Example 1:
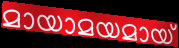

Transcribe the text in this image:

മായാമയമായ്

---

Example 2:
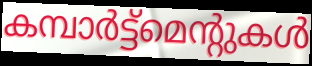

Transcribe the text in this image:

കമ്പാർട്ട്മെന്റുകൾ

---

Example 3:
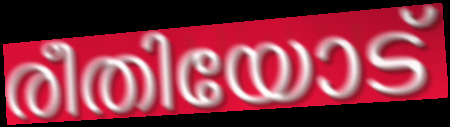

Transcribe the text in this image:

രീതിയോട്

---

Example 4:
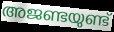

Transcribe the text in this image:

അജണ്ടയുണ്ട്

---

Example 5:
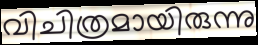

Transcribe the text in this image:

വിചിത്രമായിരുന്നു